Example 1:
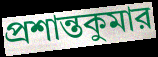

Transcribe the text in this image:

প্রশান্তকুমার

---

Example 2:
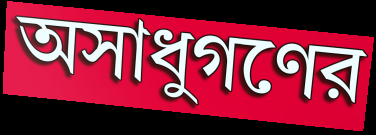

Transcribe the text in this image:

অসাধুগণের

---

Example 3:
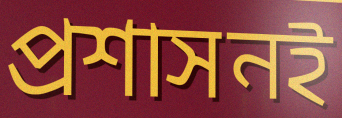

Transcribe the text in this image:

প্রশাসনই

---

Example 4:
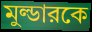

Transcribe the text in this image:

মুল্ডারকে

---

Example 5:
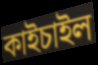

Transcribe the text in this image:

কাইচাইল